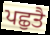
ਪਛੁਤੈ